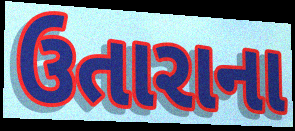
ઉતારાના